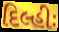
દિલ્હીઃ